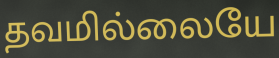
தவமில்லையே